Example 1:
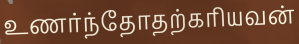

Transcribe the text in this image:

உணர்ந்தோதற்கரியவன்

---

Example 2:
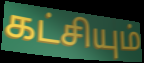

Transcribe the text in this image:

கட்சியும்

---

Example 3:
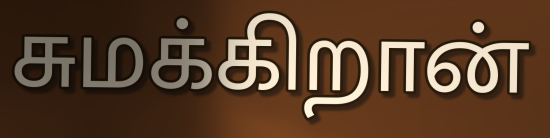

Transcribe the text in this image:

சுமக்கிறான்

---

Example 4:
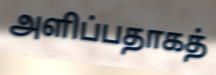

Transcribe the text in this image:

அளிப்பதாகத்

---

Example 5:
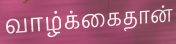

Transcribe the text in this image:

வாழ்க்கைதான்